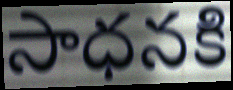
సాధనకి